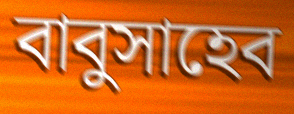
বাবুসাহেব